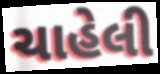
ચાહેલી